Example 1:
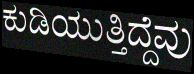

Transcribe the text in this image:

ಕುಡಿಯುತ್ತಿದ್ದೆವು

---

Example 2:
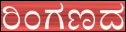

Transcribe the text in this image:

ರಿಂಗಣದ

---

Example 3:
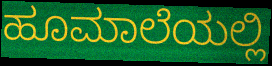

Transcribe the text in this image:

ಹೂಮಾಲೆಯಲ್ಲಿ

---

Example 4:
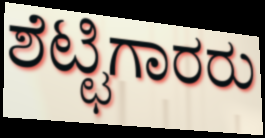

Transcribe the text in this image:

ಶೆಟ್ಟಿಗಾರರು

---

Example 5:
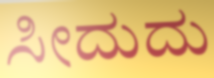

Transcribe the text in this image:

ಸೀದುದು